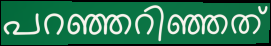
പറഞ്ഞറിഞ്ഞത്